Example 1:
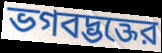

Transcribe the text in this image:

ভগবদ্ভক্তের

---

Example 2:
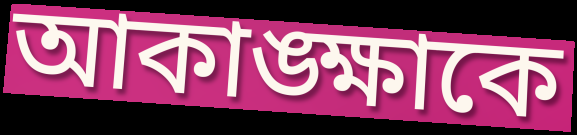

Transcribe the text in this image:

আকাঙ্ক্ষাকে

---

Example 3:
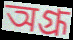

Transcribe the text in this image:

অগ্রূ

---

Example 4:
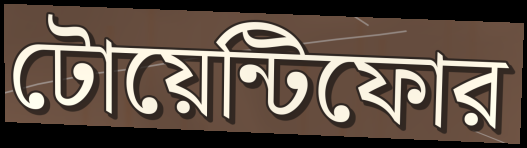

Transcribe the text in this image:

টোয়েন্টিফোর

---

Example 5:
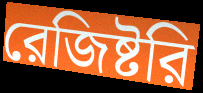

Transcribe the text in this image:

রেজিষ্টরি